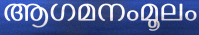
ആഗമനംമൂലം